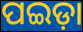
ପଇଡ଼ା